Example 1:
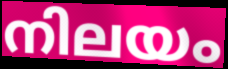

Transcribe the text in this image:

നിലയം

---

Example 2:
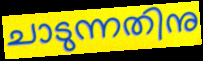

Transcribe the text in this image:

ചാടുന്നതിനു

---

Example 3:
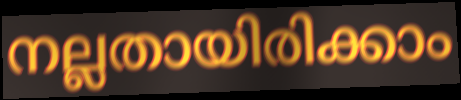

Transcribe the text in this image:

നല്ലതായിരിക്കാം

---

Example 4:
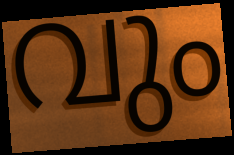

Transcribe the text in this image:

വും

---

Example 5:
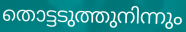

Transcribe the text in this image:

തൊട്ടടുത്തുനിന്നും